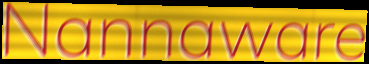
Nannaware